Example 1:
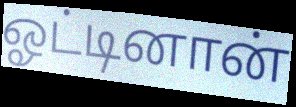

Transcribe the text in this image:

ஓட்டினான்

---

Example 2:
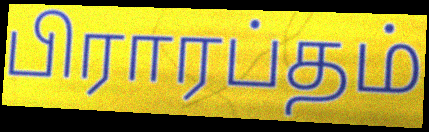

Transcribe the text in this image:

பிராரப்தம்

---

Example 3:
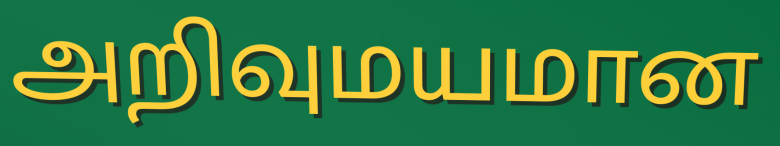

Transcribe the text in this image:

அறிவுமயமான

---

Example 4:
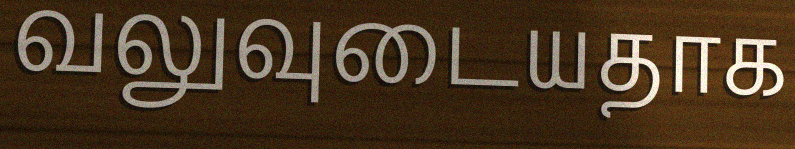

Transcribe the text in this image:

வலுவுடையதாக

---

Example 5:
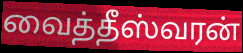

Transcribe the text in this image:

வைத்தீஸ்வரன்